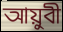
আয়ুবী